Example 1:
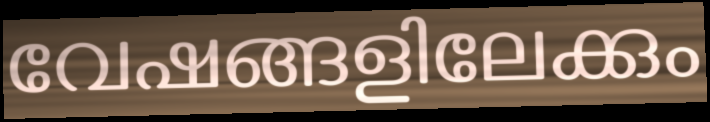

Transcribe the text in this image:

വേഷങ്ങളിലേക്കും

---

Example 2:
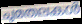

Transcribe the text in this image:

ചുമതലകൾ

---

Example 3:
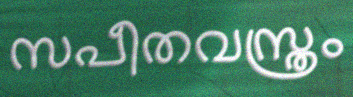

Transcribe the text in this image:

സപീതവസ്ത്രം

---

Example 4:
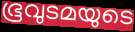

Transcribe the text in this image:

ഭൂവുടമയുടെ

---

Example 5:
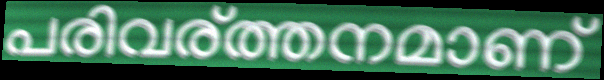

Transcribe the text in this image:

പരിവര്ത്തനമാണ്